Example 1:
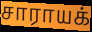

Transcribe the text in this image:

சாராயக்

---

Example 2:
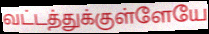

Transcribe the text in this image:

வட்டத்துக்குள்ளேயே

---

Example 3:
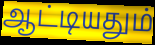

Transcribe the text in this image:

ஆட்டியதும்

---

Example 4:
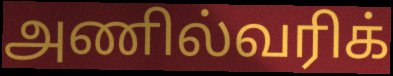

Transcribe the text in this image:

அணில்வரிக்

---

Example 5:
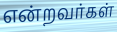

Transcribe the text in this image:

என்றவர்கள்